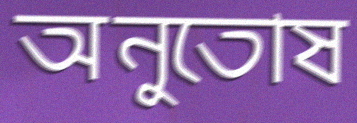
অনুতোষ